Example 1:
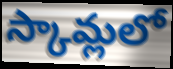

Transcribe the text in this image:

స్కామ్లలో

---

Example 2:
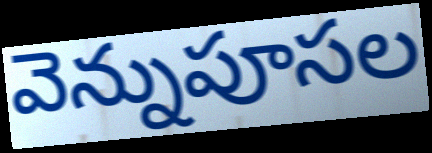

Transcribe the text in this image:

వెన్నుపూసల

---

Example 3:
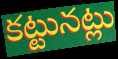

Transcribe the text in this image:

కట్టునట్లు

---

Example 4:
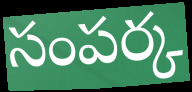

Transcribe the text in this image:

సంపర్క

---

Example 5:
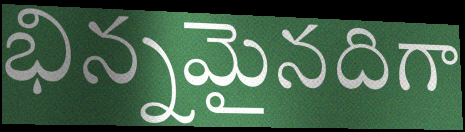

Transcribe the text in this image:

భిన్నమైనదిగా